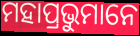
ମହାପ୍ରଭୁମାନେ